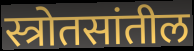
स्त्रोतसांतील